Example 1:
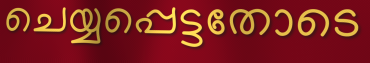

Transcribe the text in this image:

ചെയ്യപ്പെട്ടതോടെ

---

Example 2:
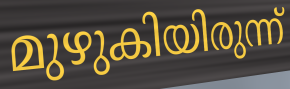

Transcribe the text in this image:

മുഴുകിയിരുന്ന്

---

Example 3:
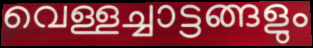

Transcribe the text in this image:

വെള്ളച്ചാട്ടങ്ങളും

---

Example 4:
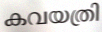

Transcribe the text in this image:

കവയത്രി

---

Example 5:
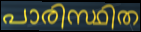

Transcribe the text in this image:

പാരിസ്ഥിത